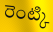
రెంట్కి